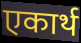
एकार्थ